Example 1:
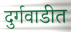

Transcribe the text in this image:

दुर्गवाडीत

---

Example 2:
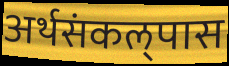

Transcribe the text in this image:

अर्थसंकल्पास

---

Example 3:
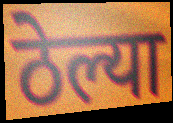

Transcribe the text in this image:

ठेल्या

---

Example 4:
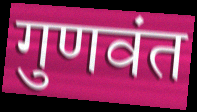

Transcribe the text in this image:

गुणवंत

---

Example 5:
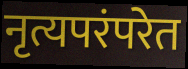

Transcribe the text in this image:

नृत्यपरंपरेत